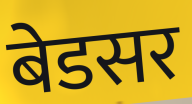
बेडसर